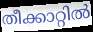
തീക്കാറ്റിൽ